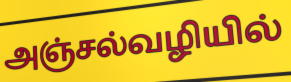
அஞ்சல்வழியில்